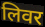
लिवर